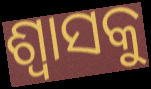
ଶ୍ଵାସକୁ